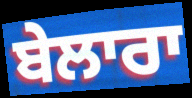
ਬੇਲਾਰਾ